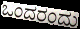
ಒಂದರಂದು